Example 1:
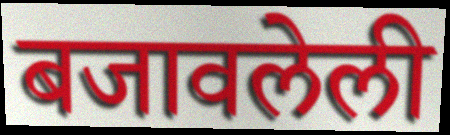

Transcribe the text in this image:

बजावलेली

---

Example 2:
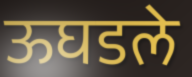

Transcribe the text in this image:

ऊघडले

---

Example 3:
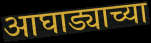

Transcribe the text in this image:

आघाड्याच्या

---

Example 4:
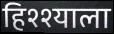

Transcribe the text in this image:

हिश्श्याला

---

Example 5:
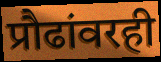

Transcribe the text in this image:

प्रौढांवरही